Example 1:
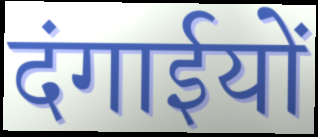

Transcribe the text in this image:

दंगाईयों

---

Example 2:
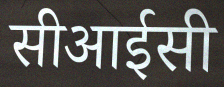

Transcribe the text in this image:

सीआईसी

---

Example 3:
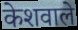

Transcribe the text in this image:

केशवाले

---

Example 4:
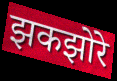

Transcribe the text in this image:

झकझोरे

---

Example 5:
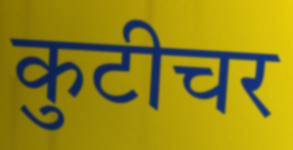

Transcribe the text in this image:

कुटीचर